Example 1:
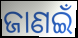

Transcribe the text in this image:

ଜାଣଇଁ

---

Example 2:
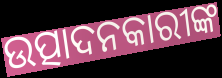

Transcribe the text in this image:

ଉତ୍ପାଦନକାରୀଙ୍କ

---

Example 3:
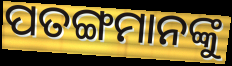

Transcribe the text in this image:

ପତଙ୍ଗମାନଙ୍କୁ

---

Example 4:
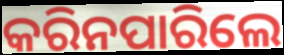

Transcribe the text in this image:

କରିନପାରିଲେ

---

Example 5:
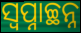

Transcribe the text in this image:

ସ୍ଵପ୍ନାଚ୍ଛନ୍ନ